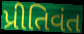
પ્રીતિવંત